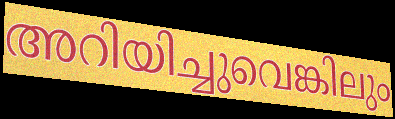
അറിയിച്ചുവെങ്കിലും